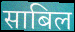
साबिल